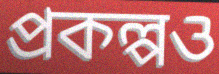
প্রকল্পও